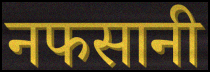
नफसानी